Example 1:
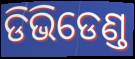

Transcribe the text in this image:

ଡିଭିଡେଣ୍ଡ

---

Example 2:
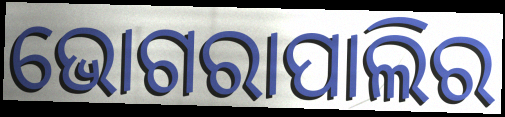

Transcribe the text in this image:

ଭୋଗରାପାଲିର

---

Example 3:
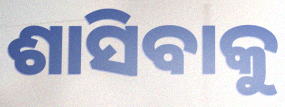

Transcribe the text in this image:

ଶାସିବାକୁ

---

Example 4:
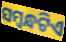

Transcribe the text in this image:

ସମ୍ୱନ୍ଧଟିଏ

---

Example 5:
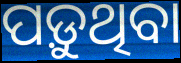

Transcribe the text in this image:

ପଡ଼ୁଥିବା